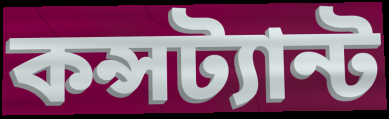
কন্সট্যান্ট